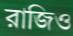
রাজিও